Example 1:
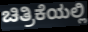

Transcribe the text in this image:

ಚಿತ್ರಿಕೆಯಲ್ಲಿ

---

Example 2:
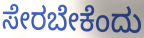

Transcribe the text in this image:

ಸೇರಬೇಕೆಂದು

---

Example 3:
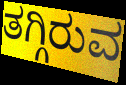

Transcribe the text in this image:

ತಗ್ಗಿರುವ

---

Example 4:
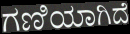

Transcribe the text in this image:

ಗಣಿಯಾಗಿದೆ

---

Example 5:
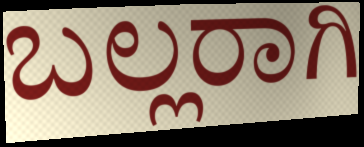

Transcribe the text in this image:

ಬಲ್ಲರಾಗಿ